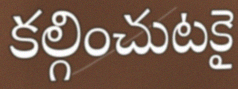
కల్గించుటకై